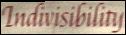
Indivisibility